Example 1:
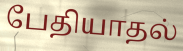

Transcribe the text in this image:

பேதியாதல்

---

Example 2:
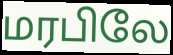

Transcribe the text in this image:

மரபிலே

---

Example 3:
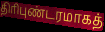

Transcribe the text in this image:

திரிபுண்டரமாகத்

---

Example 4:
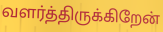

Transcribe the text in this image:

வளர்த்திருக்கிறேன்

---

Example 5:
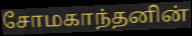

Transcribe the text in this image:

சோமகாந்தனின்